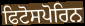
ਫਿਟੋਸਪੋਰਿਨ